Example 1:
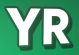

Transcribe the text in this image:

YR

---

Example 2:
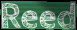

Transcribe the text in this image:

Reed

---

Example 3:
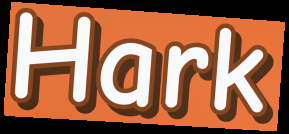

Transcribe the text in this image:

Hark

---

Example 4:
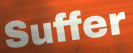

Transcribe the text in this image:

Suffer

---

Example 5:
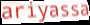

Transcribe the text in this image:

ariyassa